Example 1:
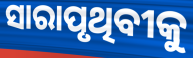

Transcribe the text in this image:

ସାରାପୃଥିବୀକୁ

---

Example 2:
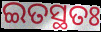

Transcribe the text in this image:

ଇତସ୍ଥତଃ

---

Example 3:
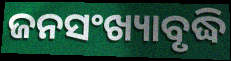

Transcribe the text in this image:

ଜନସଂଖ୍ୟାବୃଦ୍ଧି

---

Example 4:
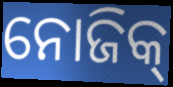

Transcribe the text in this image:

ନୋଜିକ୍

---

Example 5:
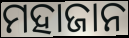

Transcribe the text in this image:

ମହାଜାନ